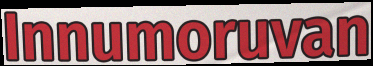
Innumoruvan